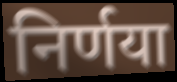
निर्णया